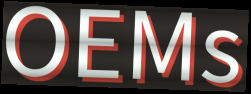
OEMs